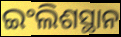
ଇଂଲିଶସ୍ଥାନ